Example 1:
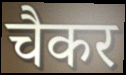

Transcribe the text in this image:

चैकर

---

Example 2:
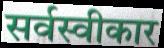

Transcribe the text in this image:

सर्वस्वीकार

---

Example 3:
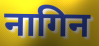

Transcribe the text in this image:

नागिन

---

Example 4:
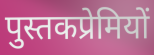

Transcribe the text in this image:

पुस्तकप्रेमियों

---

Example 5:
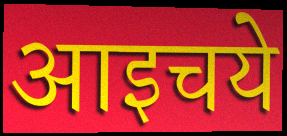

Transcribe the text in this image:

आइचये